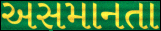
અસમાનતા